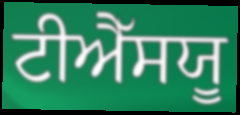
ਟੀਐੱਸਯੂ